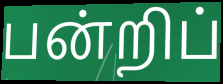
பன்றிப்